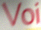
Voi